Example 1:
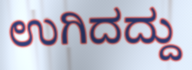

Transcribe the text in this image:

ಉಗಿದದ್ದು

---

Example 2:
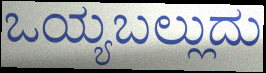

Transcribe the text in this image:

ಒಯ್ಯಬಲ್ಲುದು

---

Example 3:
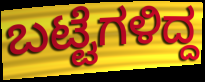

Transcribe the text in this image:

ಬಟ್ಟೆಗಳಿದ್ದ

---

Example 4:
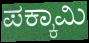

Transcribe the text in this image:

ಪಕ್ಕಾಮಿ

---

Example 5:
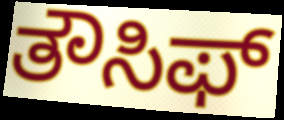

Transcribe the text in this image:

ತೌಸಿಫ್